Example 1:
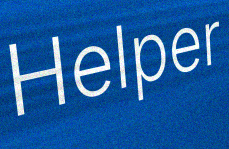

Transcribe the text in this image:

Helper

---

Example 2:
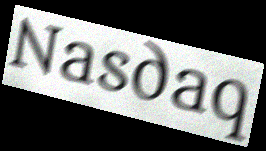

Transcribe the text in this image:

Nasdaq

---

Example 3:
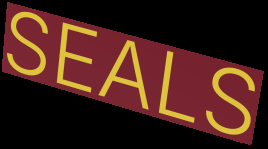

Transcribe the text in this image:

SEALS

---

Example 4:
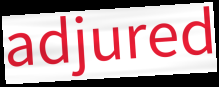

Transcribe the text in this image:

adjured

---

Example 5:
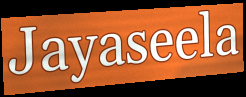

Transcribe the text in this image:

Jayaseela